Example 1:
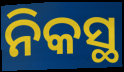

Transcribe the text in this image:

ନିକସ୍ଥ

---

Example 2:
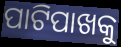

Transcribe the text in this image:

ପାଟିପାଖକୁ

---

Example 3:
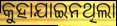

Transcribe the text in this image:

କୁହାଯାଇନଥିଲା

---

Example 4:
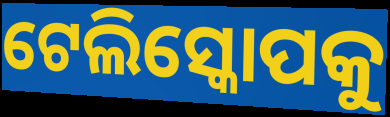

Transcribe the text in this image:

ଟେଲିସ୍କୋପକୁ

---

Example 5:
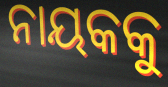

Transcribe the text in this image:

ନାୟକକୁ